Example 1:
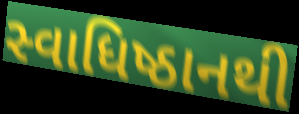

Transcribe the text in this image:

સ્વાધિષ્ઠાનથી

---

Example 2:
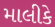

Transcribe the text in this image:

માલીકે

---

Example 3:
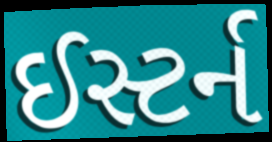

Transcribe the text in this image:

ઈસ્ટર્ન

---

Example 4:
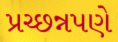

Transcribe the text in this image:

પ્રચ્છન્નપણે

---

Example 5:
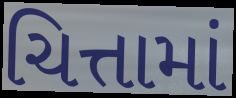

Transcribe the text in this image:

ચિત્તામાં